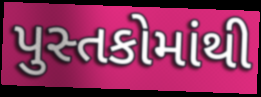
પુસ્તકોમાંથી